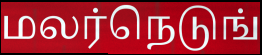
மலர்நெடுங்